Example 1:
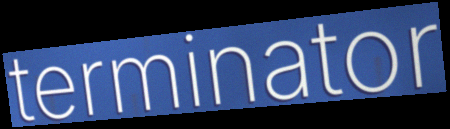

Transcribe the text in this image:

terminator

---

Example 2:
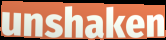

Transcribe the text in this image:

unshaken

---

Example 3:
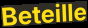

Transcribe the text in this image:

Beteille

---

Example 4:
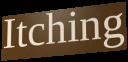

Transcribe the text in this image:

Itching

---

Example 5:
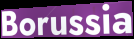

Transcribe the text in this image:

Borussia